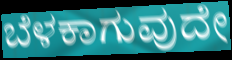
ಬೆಳಕಾಗುವುದೇ